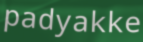
padyakke